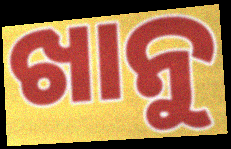
ଖାନୁ